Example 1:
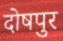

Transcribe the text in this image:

दोषपुर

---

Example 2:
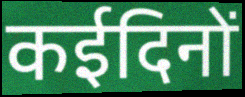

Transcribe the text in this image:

कईदिनों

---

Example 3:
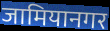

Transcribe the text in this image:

जामियानगर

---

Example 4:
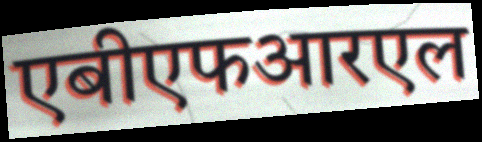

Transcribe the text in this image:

एबीएफआरएल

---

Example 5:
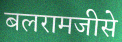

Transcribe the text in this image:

बलरामजीसे